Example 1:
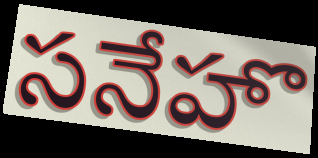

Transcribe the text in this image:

సనేహొ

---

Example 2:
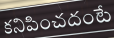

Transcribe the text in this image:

కనిపించదంటే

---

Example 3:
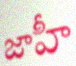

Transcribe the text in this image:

జాహీ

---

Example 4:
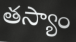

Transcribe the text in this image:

తస్యాం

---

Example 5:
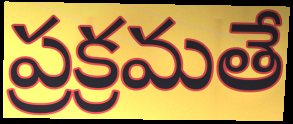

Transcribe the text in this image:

ప్రక్రమతే